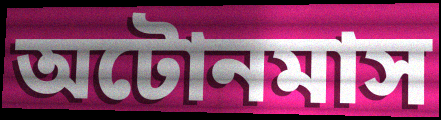
অটোনমাস